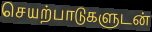
செயற்பாடுகளுடன்